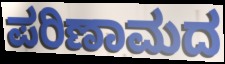
ಪರಿಣಾಮದ